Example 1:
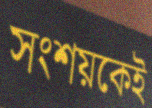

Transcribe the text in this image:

সংশয়কেই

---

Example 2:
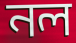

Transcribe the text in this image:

নল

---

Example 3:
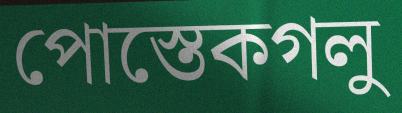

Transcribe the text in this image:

পোস্তেকগলু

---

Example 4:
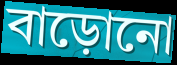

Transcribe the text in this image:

বাড়োনো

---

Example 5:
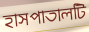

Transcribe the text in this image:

হাসপাতালটি